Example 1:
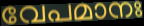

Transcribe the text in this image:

വേപമാനഃ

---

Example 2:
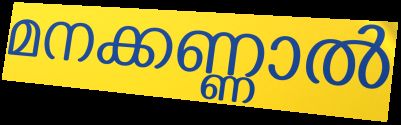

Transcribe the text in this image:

മനക്കണ്ണാൽ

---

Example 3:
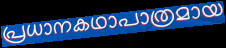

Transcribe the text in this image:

പ്രധാനകഥാപാത്രമായ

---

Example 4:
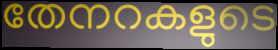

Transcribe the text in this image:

തേനറകളുടെ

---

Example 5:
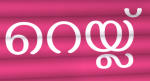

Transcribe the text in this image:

റെയ്ല്